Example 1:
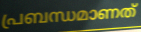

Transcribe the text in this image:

പ്രബന്ധമാണത്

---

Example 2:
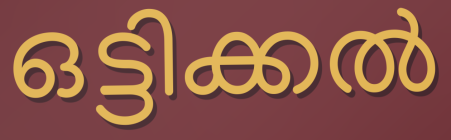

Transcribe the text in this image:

ഒട്ടിക്കൽ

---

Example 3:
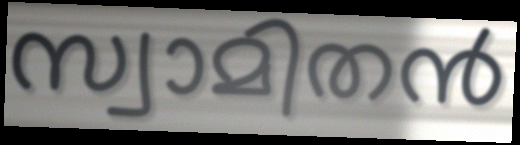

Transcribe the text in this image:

സ്വാമിതൻ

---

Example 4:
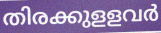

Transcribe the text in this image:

തിരക്കുളളവർ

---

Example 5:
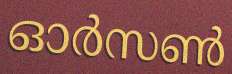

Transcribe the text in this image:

ഓർസൺ